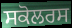
ਸਕੋਲਰਸ